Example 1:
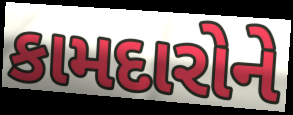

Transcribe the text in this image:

કામદારોને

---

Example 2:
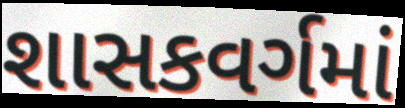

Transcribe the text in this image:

શાસકવર્ગમાં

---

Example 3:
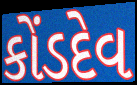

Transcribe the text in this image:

કોંડદેવ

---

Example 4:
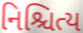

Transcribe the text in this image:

નિશ્ચિત્ય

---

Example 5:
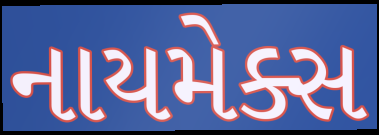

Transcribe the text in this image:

નાયમેક્સ